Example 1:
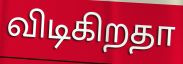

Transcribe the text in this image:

விடிகிறதா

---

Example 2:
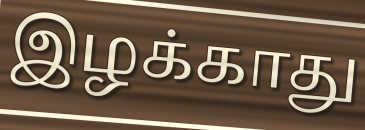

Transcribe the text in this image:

இழக்காது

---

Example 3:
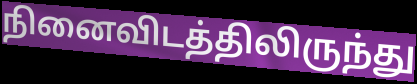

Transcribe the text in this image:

நினைவிடத்திலிருந்து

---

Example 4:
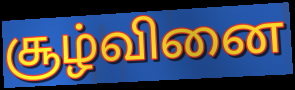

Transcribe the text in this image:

சூழ்வினை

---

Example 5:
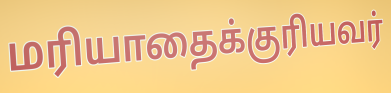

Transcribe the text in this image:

மரியாதைக்குரியவர்